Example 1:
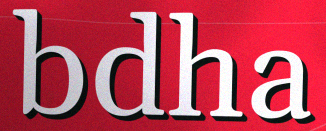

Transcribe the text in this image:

bdha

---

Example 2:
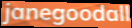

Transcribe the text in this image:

janegoodall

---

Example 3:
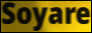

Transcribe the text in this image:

Soyare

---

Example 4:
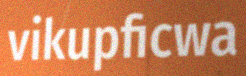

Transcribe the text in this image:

vikupficwa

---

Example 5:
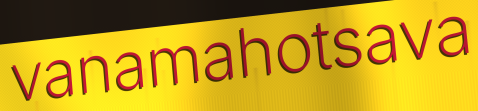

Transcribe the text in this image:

vanamahotsava